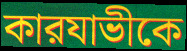
কারযাভীকে